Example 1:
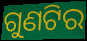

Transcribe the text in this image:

ଗୁଣଟିର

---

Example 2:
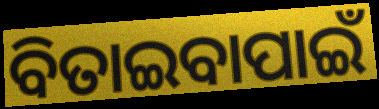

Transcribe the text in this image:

ବିତାଇବାପାଇଁ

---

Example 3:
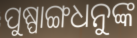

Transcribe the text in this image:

ପୁଷ୍ପାଙ୍ଗଧନୁଙ୍କ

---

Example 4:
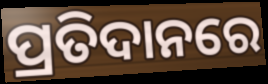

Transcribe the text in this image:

ପ୍ରତିଦାନରେ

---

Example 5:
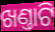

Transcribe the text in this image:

ଖଣ୍ତାଟି